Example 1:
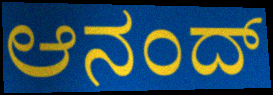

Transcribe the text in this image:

ಆನಂದ್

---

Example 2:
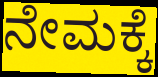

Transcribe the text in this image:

ನೇಮಕ್ಕೆ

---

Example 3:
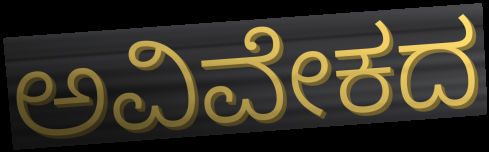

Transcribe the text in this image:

ಅವಿವೇಕದ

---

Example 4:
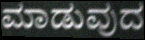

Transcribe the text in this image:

ಮಾಡುವುದ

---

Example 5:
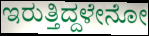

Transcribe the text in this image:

ಇರುತ್ತಿದ್ದಳೇನೋ